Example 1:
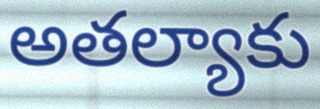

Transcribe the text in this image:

అతల్యాకు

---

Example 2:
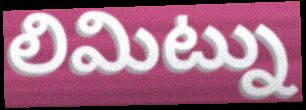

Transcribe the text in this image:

లిమిట్ను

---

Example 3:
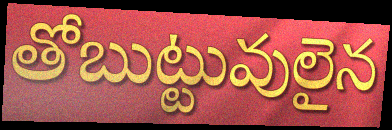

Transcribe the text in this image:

తోబుట్టువులైన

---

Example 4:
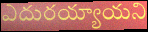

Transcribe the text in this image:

ఎదురయ్యాయని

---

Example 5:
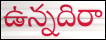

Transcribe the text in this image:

ఉన్నదిరా